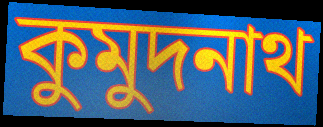
কুমুদনাথ